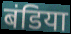
बंडिया